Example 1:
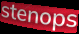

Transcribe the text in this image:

stenops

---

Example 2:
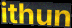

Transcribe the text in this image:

ithun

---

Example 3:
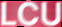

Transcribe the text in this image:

LCU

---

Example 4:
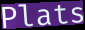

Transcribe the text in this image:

Plats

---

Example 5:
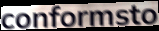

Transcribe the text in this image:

conformsto